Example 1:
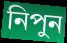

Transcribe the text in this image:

নিপুন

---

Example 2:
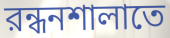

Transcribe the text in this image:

রন্ধনশালাতে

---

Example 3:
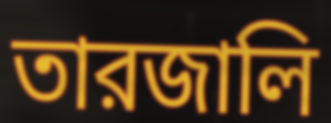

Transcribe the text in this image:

তারজালি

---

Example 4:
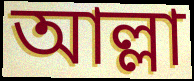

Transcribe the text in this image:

আল্লা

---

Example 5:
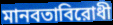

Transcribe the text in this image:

মানবতাবিরোধী